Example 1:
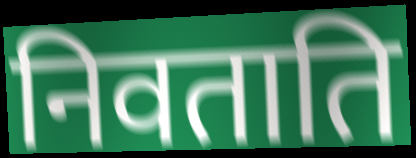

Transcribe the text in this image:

निवताति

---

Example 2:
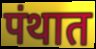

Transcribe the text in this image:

पंथात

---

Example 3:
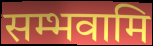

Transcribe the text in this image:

सम्भवामि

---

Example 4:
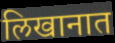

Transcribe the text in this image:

लिखानात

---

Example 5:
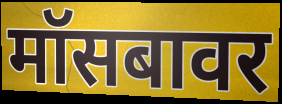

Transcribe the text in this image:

मॉसबावर